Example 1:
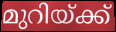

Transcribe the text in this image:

മുറിയ്ക്ക്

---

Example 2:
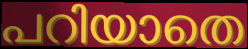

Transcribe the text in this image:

പറിയാതെ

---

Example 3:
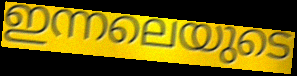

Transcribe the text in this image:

ഇന്നലെയുടെ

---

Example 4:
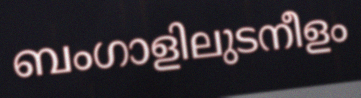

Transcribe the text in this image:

ബംഗാളിലുടനീളം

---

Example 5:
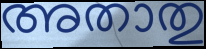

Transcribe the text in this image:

അതാതു